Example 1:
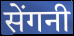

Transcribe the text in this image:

सेंगनी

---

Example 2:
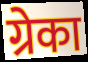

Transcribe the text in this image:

ग्रेका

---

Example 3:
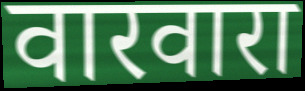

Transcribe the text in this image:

वारवारा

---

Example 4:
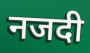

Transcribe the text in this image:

नजदी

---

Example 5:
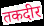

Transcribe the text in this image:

तकदीर